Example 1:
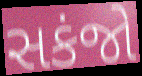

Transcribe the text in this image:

સકંજો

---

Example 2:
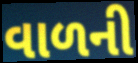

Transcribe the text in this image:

વાળની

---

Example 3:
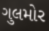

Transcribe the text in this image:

ગુલમોર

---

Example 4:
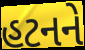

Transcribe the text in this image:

હટનને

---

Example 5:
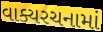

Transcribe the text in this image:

વાક્યરચનામાં